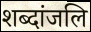
शब्दांजलि